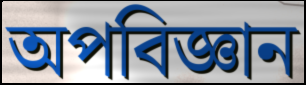
অপবিজ্ঞান